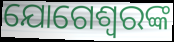
ଯୋଗେଶ୍ୱରଙ୍କ